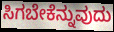
ಸಿಗಬೇಕೆನ್ನುವುದು